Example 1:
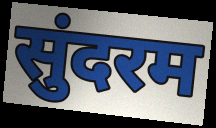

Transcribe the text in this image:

सुंदरम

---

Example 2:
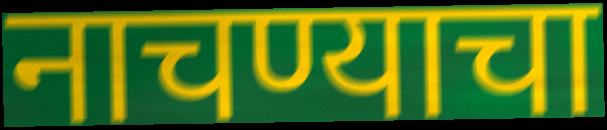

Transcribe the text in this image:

नाचण्याचा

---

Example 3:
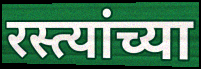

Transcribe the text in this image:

रस्त्यांच्या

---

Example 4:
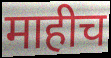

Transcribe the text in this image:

माहीच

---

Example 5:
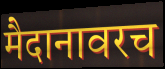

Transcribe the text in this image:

मैदानावरच